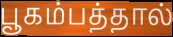
பூகம்பத்தால்